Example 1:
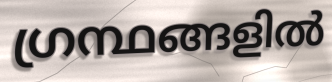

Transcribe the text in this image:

ഗ്രന്ഥങ്ങളിൽ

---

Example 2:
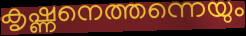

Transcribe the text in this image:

കൃഷ്ണനെത്തന്നെയും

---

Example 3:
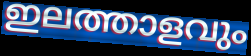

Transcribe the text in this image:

ഇലത്താളവും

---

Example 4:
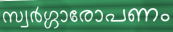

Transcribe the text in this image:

സ്വർഗ്ഗാരോപണം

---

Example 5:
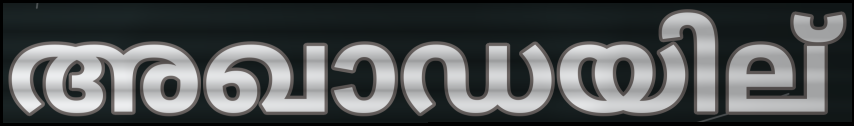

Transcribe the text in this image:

അഖാഡയില്